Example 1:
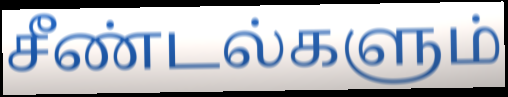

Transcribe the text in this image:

சீண்டல்களும்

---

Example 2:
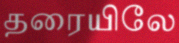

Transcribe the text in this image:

தரையிலே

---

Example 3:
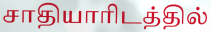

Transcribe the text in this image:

சாதியாரிடத்தில்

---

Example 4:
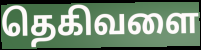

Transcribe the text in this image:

தெகிவளை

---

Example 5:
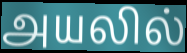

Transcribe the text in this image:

அயலில்